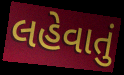
લહેવાતું